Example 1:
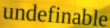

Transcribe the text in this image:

undefinable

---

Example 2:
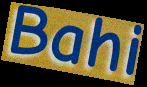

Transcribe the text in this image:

Bahi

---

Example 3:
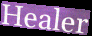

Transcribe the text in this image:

Healer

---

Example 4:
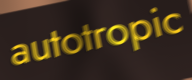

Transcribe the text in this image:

autotropic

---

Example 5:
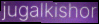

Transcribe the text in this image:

jugalkishor